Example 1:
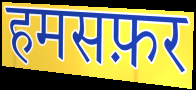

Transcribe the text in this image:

हमसफ़र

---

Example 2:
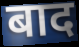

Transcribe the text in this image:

बाद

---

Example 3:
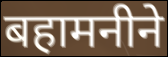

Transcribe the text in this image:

बहामनीने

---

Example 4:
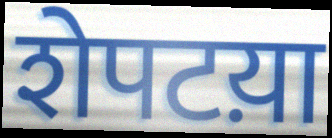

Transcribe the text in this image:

शेपटय़ा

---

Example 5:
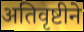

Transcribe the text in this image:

अतिवृष्टीने